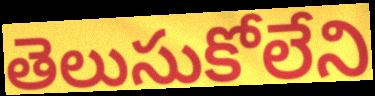
తెలుసుకోలేని